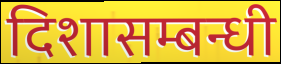
दिशासम्बन्धी